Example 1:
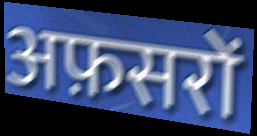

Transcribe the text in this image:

अफ़सरों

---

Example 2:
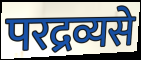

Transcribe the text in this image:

परद्रव्यसे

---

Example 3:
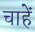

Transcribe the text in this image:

चाहें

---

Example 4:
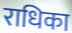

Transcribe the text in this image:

राधिका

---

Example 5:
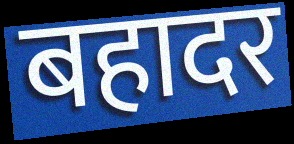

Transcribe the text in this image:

बहादर